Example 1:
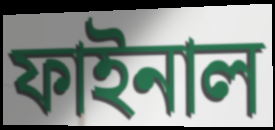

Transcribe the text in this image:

ফাইনাল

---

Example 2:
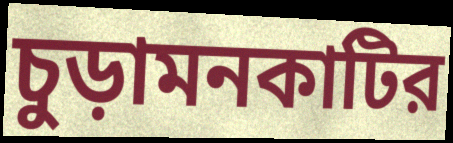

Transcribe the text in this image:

চুড়ামনকাটির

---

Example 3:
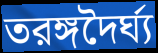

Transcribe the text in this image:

তরঙ্গদৈর্ঘ্য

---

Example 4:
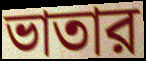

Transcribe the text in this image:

ভাতার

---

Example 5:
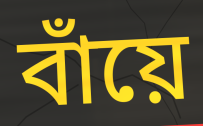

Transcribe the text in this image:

বাঁয়ে